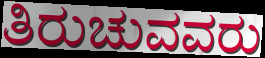
ತಿರುಚುವವರು